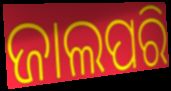
ଜାଲପରି